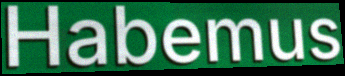
Habemus